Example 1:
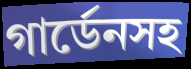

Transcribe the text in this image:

গার্ডেনসহ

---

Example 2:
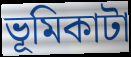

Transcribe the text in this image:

ভূমিকাটা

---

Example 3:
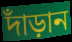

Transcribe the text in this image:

দাঁড়ান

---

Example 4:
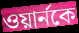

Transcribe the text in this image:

ওয়ার্নকে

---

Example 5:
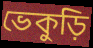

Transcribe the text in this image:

ভেকুড়ি